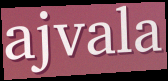
ajvala